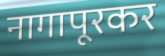
नागापूरकर